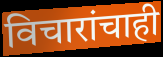
विचारांचाही